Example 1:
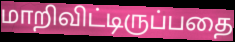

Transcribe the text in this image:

மாறிவிட்டிருப்பதை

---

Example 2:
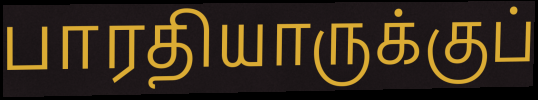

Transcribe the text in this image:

பாரதியாருக்குப்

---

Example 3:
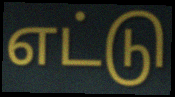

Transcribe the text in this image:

எட்டு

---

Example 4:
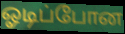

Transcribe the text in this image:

ஓடிப்போன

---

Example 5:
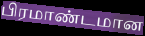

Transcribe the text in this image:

பிரமாண்டமான